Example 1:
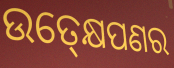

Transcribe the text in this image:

ଉତ୍କ୍ଷେପଣର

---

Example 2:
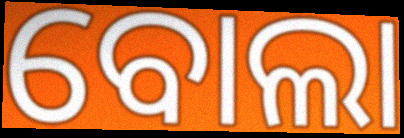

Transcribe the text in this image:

ବୋଲା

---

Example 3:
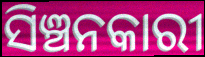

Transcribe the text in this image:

ସିଞ୍ଚନକାରୀ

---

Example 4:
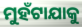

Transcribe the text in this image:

ମୁହଁଟାଯାକୁ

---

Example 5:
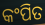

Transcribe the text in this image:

କଂପିତ